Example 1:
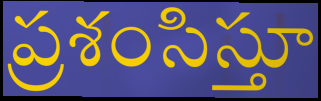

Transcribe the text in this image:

ప్రశంసిస్తూ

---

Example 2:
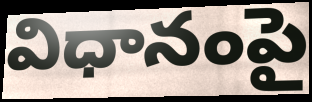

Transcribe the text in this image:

విధానంపై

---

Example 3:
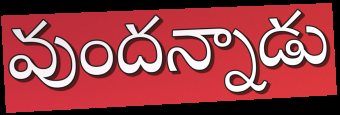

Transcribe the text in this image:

వుందన్నాడు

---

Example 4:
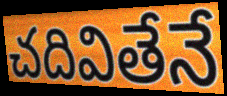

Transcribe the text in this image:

చదివితేనే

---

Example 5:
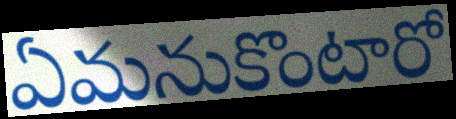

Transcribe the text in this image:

ఏమనుకొంటారో